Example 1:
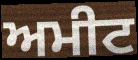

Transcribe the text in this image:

ਅਮੀਟ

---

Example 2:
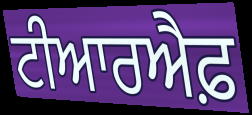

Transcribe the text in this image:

ਟੀਆਰਐਫ਼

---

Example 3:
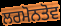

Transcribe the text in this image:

ਲਰਮੋਨਤੋਵ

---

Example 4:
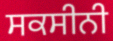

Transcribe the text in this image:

ਸਕਸੀਨੀ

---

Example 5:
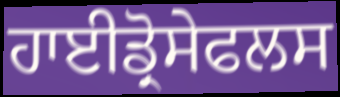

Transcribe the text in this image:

ਹਾਈਡ੍ਰੋਸੇਫਲਸ